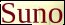
Suno